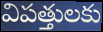
విపత్తులకు